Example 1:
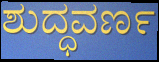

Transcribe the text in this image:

ಶುದ್ಧವರ್ಣ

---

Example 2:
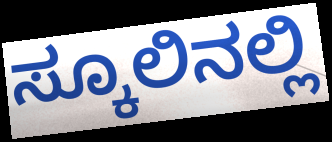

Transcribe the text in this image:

ಸ್ಕೂಲಿನಲ್ಲಿ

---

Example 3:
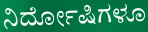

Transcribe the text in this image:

ನಿರ್ದೋಷಿಗಳೂ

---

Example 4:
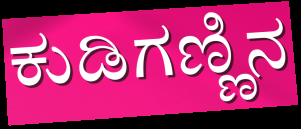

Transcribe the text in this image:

ಕುಡಿಗಣ್ಣಿನ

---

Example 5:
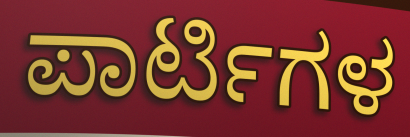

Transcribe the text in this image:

ಪಾರ್ಟಿಗಳ